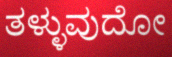
ತಳ್ಳುವುದೋ